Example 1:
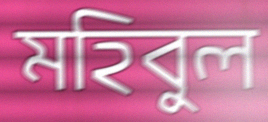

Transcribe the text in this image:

মহিবুল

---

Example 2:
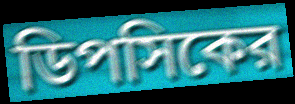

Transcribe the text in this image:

ডিপসিকের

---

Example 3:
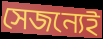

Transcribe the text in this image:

সেজন্যেই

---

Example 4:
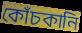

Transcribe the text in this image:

কোঁচকানি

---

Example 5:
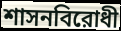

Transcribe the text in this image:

শাসনবিরোধী